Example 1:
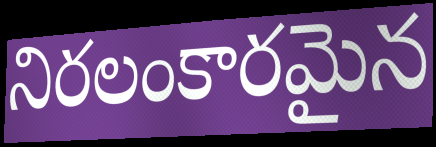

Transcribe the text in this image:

నిరలంకారమైన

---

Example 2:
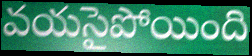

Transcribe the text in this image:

వయసైపోయింది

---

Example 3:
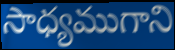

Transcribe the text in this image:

సాధ్యముగాని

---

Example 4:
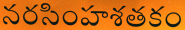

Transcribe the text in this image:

నరసింహశతకం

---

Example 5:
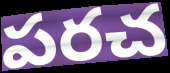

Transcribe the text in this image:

పరచ